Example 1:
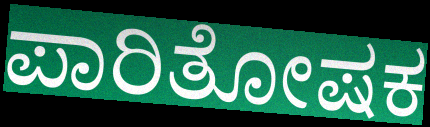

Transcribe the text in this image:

ಪಾರಿತೋಷಕ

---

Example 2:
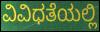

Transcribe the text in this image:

ವಿವಿಧತೆಯಲ್ಲಿ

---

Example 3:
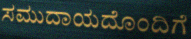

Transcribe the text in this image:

ಸಮುದಾಯದೊಂದಿಗೆ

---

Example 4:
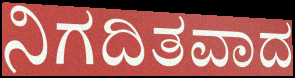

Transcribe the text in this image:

ನಿಗದಿತವಾದ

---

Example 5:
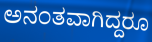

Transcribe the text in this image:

ಅನಂತವಾಗಿದ್ದರೂ